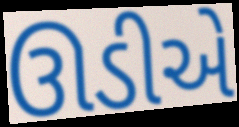
ઊડીએ